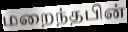
மறைந்தபின்